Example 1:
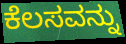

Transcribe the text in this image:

ಕೆಲಸವನ್ನು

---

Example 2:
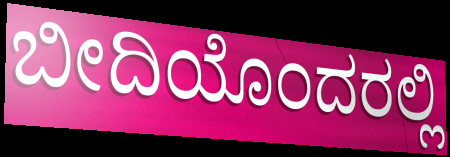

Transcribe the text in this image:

ಬೀದಿಯೊಂದರಲ್ಲಿ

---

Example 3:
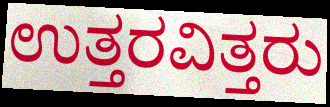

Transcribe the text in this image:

ಉತ್ತರವಿತ್ತರು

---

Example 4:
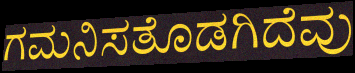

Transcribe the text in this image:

ಗಮನಿಸತೊಡಗಿದೆವು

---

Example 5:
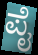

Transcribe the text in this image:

ಪೈ